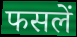
फसलें